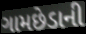
ગામછેડાની